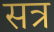
सत्र